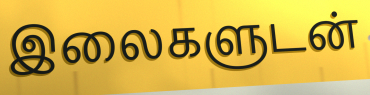
இலைகளுடன்